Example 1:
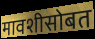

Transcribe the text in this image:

मावशीसोबत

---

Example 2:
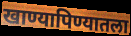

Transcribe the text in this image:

खाण्यापिण्यातला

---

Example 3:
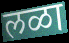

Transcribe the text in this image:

लळा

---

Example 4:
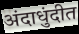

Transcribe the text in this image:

अंदाधुंदीत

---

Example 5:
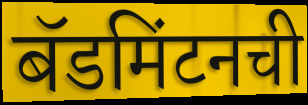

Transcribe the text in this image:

बॅडमिंटनची